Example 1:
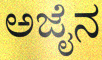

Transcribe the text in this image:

ಅಜೈನ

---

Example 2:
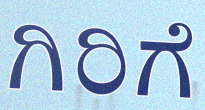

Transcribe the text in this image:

ಗಿರಿಗೆ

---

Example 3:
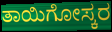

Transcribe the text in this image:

ತಾಯಿಗೋಸ್ಕರ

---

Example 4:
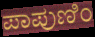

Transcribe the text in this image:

ಪಾಪುಣಿಂ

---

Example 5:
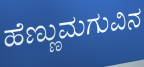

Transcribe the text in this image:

ಹೆಣ್ಣುಮಗುವಿನ